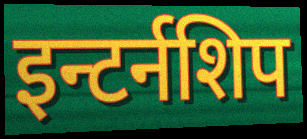
इन्टर्नशिप